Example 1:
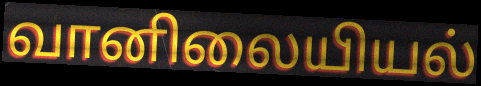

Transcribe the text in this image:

வானிலையியல்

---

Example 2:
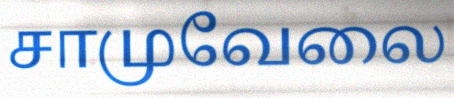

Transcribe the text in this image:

சாமுவேலை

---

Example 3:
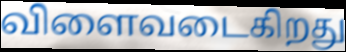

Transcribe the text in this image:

விளைவடைகிறது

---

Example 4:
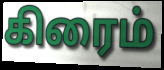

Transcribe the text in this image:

கிரைம்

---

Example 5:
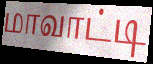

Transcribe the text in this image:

மாவாட்டி